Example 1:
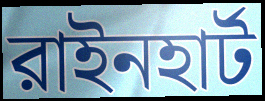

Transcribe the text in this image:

রাইনহার্ট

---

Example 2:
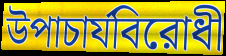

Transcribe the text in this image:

উপাচার্যবিরোধী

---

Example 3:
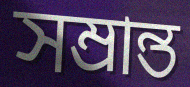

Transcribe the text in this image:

সম্রান্ত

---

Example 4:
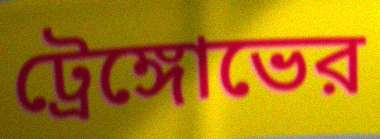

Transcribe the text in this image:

ট্রেঙ্গোভের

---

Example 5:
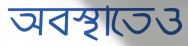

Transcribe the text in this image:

অবস্থাতেও